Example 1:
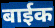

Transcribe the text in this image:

बाईक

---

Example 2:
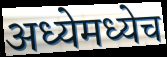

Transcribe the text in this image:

अध्येमध्येच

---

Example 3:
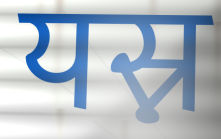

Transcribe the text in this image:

यस्न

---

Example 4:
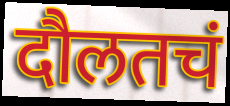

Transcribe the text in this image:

दौलतचं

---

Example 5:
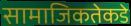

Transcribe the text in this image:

सामाजिकतेकडे